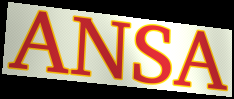
ANSA